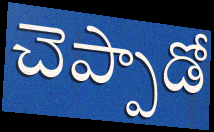
చెప్పాడో